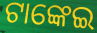
ଟାଙ୍କେଇ